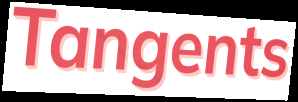
Tangents